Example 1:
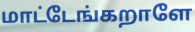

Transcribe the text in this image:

மாட்டேங்கறாளே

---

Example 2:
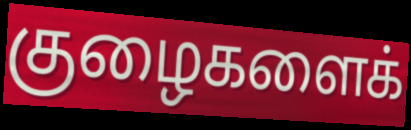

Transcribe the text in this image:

குழைகளைக்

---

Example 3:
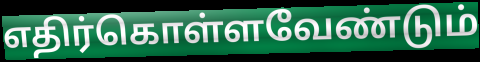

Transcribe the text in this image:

எதிர்கொள்ளவேண்டும்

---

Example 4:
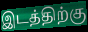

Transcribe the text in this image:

இடத்திற்கு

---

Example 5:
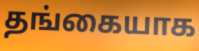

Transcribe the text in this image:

தங்கையாக